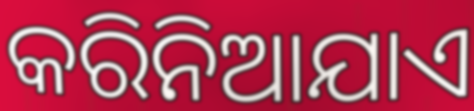
କରିନିଆଯାଏ